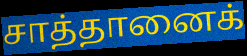
சாத்தானைக்